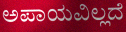
ಅಪಾಯವಿಲ್ಲದೆ